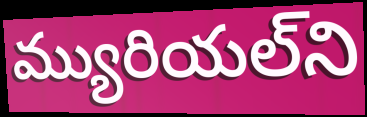
మ్యురియల్‌ని